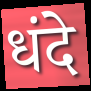
धंदे